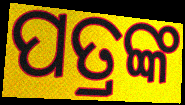
ପତ୍ରଙ୍କ